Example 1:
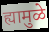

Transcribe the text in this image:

ह्यामुळे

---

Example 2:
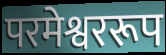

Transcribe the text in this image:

परमेश्वररूप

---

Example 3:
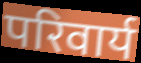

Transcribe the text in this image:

परिवार्य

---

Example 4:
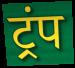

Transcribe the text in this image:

ट्रंप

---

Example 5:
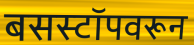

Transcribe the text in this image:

बसस्टॉपवरून